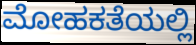
ಮೋಹಕತೆಯಲ್ಲಿ